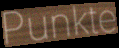
Punkte